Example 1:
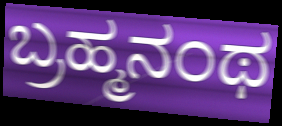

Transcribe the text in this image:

ಬ್ರಹ್ಮನಂಥ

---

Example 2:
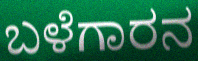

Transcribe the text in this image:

ಬಳೆಗಾರನ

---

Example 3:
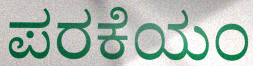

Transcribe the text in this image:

ಪರಕೆಯಂ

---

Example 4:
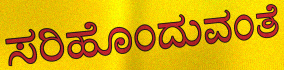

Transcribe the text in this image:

ಸರಿಹೊಂದುವಂತೆ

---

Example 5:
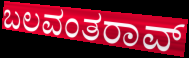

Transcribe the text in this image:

ಬಲವಂತರಾವ್